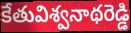
కేతువిశ్వనాథరెడ్డి